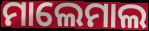
ମାଲେମାଲ